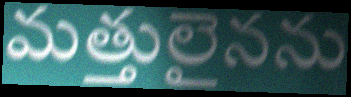
మత్తులైనను